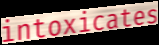
intoxicates